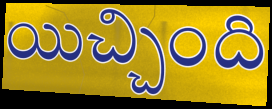
యిచ్చింది